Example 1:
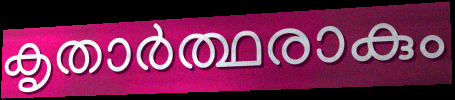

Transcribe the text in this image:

കൃതാർത്ഥരാകും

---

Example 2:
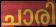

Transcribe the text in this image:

ചാരി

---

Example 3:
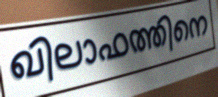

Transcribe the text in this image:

ഖിലാഫത്തിനെ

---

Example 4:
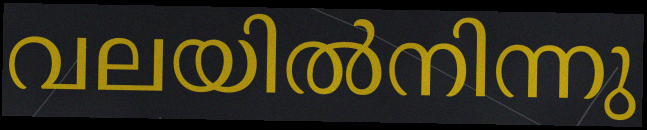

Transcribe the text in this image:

വലയിൽനിന്നു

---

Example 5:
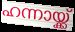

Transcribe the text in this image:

ഹന്നായ്ക്ക്